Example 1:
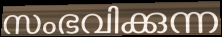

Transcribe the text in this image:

സംഭവിക്കുന്ന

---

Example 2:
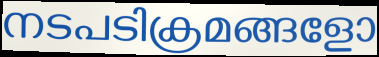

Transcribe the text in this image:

നടപടിക്രമങ്ങളോ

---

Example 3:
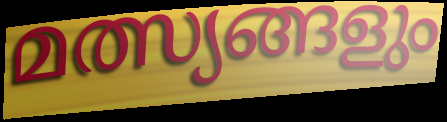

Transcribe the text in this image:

മത്സ്യങ്ങളും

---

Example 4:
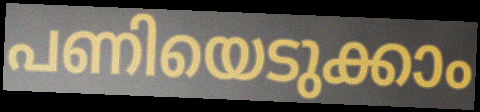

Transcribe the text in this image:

പണിയെടുക്കാം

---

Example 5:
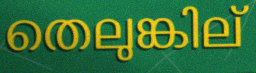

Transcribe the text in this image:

തെലുങ്കില്